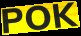
POK